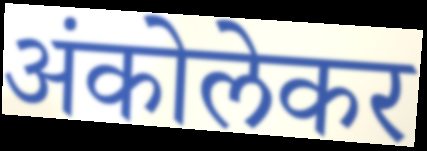
अंकोलेकर